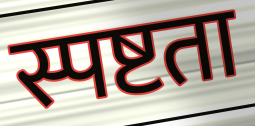
स्पष्टता